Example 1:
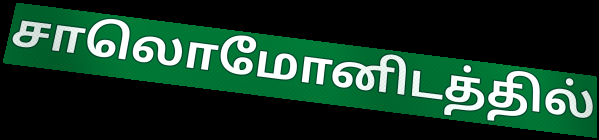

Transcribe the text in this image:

சாலொமோனிடத்தில்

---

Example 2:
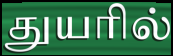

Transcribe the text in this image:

துயரில்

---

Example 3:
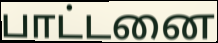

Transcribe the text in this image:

பாட்டனை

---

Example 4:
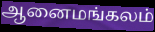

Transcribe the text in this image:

ஆனைமங்கலம்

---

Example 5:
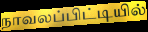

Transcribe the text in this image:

நாவலப்பிட்டியில்